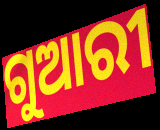
ଗୁଆରୀ